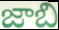
జాబి